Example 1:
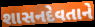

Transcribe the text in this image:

શાસનદેવતાને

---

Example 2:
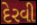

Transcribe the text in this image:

દેરવી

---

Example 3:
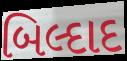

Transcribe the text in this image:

બિલ્દાદ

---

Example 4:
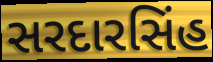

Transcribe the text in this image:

સરદારસિંહ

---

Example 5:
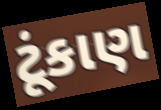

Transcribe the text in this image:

ટૂંકાણ